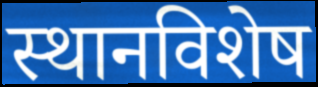
स्थानविशेष